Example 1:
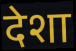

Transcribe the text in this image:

देशा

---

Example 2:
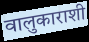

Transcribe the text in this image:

वालुकाराशी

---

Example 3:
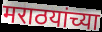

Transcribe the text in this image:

मराठयांच्या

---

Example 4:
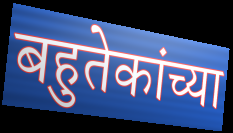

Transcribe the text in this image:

बहुतेकांच्या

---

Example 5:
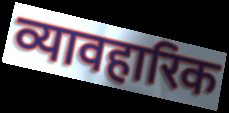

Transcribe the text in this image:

व्यावहारिक